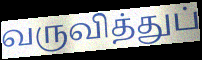
வருவித்துப்